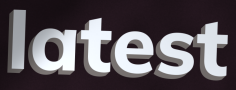
latest